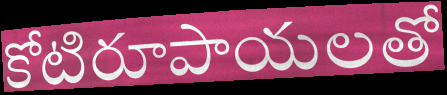
కోటిరూపాయలతో